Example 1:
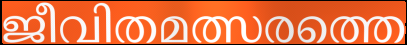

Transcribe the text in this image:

ജീവിതമത്സരത്തെ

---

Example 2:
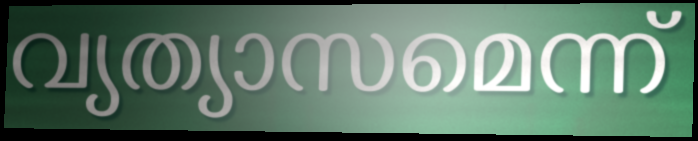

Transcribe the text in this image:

വ്യത്യാസമെന്ന്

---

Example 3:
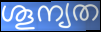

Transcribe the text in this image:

ശൂന്യത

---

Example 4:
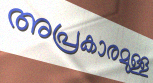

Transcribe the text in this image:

അപ്രകാരമുള്ള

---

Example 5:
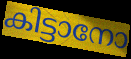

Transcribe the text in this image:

കിട്ടാനോ